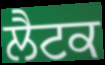
ਲੈਟਕ